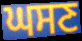
ਘਸਣ